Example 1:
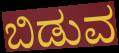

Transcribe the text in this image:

ಬಿಡುವ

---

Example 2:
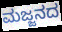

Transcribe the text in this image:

ಮಜ್ಜನದ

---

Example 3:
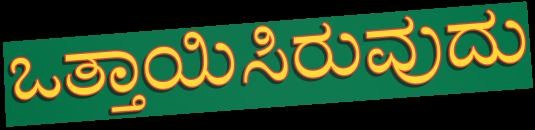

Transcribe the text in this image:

ಒತ್ತಾಯಿಸಿರುವುದು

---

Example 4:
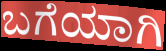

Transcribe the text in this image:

ಬಗೆಯಾಗಿ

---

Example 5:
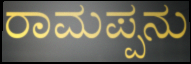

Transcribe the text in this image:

ರಾಮಪ್ಪನು